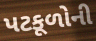
પટકૂળોની